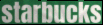
starbucks